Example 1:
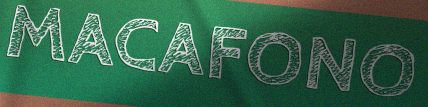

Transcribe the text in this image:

MACAFONO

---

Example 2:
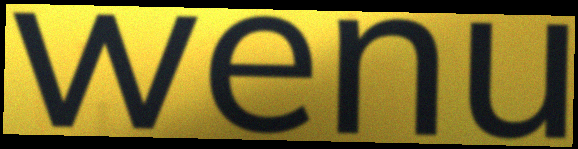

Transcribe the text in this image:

wenu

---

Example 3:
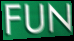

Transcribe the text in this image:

FUN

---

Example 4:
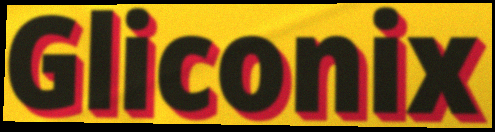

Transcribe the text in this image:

Gliconix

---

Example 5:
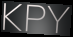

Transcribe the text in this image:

KPY